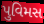
પુવિમસ